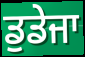
ਡੁਡੇਜਾ